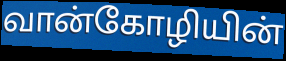
வான்கோழியின்